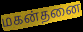
மகன்தனை